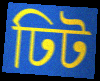
ঢিট